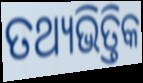
ତଥ୍ୟଭିତ୍ତିକ